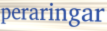
peraringar